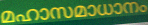
മഹാസമാധാനം